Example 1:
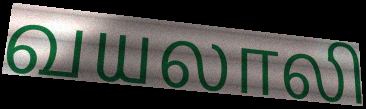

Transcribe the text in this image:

வயலாலி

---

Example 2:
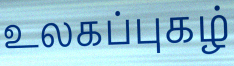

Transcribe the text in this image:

உலகப்புகழ்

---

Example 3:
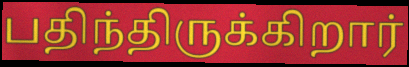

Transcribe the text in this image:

பதிந்திருக்கிறார்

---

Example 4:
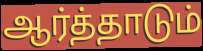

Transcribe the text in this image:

ஆர்த்தாடும்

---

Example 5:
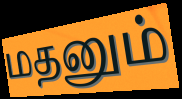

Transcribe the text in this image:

மதனும்